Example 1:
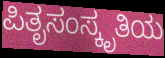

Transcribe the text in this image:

ಪಿತೃಸಂಸ್ಕೃತಿಯ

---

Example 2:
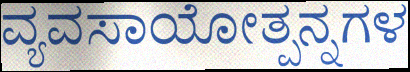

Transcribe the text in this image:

ವ್ಯವಸಾಯೋತ್ಪನ್ನಗಳ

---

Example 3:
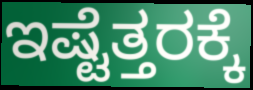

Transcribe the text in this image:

ಇಷ್ಟೆತ್ತರಕ್ಕೆ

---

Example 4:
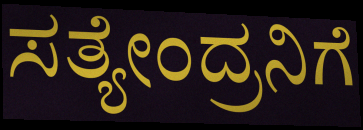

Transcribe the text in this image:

ಸತ್ಯೇಂದ್ರನಿಗೆ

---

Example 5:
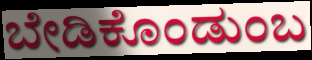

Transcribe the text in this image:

ಬೇಡಿಕೊಂಡುಂಬ